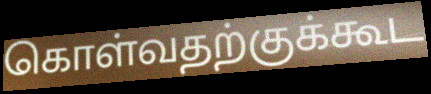
கொள்வதற்குக்கூட